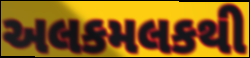
અલકમલકથી